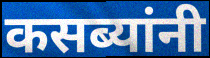
कसब्यांनी